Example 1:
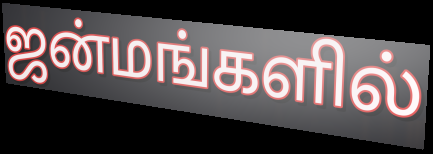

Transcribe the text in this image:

ஜன்மங்களில்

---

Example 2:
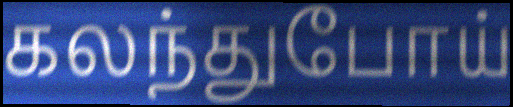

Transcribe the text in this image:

கலந்துபோய்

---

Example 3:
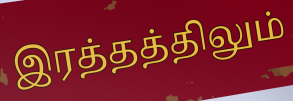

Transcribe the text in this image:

இரத்தத்திலும்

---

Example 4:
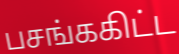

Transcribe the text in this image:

பசங்ககிட்ட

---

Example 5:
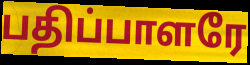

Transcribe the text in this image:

பதிப்பாளரே